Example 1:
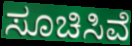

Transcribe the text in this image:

ಸೂಚಿಸಿವೆ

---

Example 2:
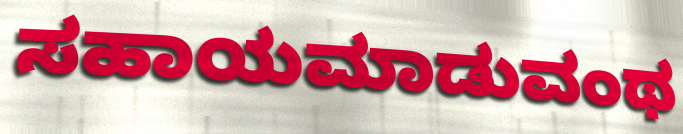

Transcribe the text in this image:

ಸಹಾಯಮಾಡುವಂಥ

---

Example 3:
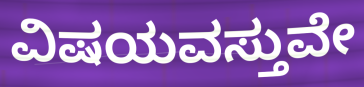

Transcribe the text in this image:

ವಿಷಯವಸ್ತುವೇ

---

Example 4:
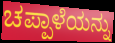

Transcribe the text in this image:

ಚಪ್ಪಾಳೆಯನ್ನು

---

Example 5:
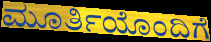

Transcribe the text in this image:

ಮೂರ್ತಿಯೊಂದಿಗೆ